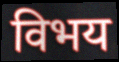
विभय